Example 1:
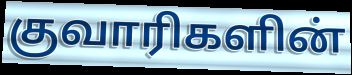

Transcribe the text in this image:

குவாரிகளின்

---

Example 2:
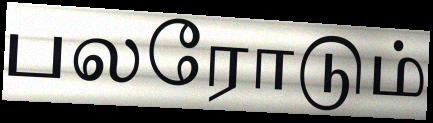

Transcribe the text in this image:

பலரோடும்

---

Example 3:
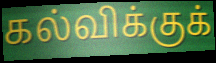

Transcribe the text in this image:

கல்விக்குக்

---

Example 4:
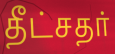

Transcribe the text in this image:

தீட்சதர்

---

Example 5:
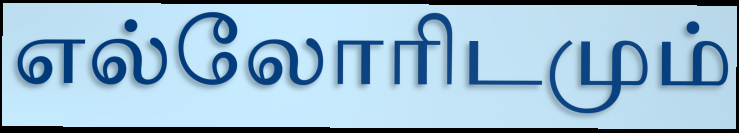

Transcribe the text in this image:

எல்லோரிடமும்